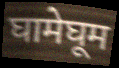
घामेघूम